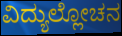
ವಿದ್ಯುಲ್ಲೋಚನ